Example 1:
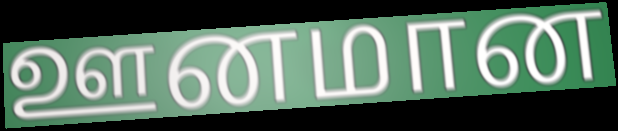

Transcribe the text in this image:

ஊனமான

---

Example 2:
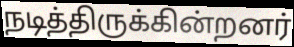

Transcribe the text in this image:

நடித்திருக்கின்றனர்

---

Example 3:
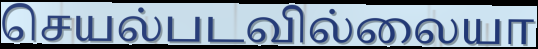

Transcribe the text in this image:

செயல்படவில்லையா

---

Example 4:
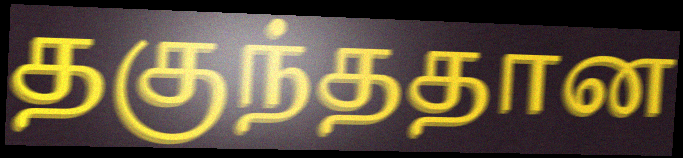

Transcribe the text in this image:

தகுந்ததான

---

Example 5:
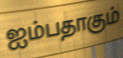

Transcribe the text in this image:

ஐம்பதாகும்